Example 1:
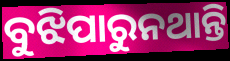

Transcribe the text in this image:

ବୁଝିପାରୁନଥାନ୍ତି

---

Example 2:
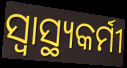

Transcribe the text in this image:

ସ୍ୱାସ୍ଥ୍ୟକର୍ମୀ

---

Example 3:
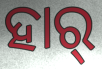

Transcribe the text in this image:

ହାର୍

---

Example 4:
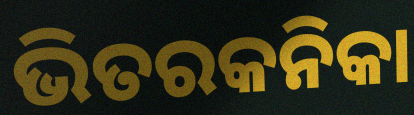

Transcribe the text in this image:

ଭିତରକନିକା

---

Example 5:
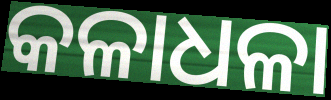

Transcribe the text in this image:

କଳାଧଳା